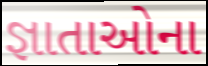
જ્ઞાતાઓના